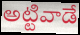
అట్టివాడే